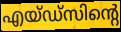
എയ്ഡ്സിന്റെ